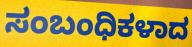
ಸಂಬಂಧಿಕಳಾದ